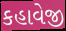
કહાવેજી